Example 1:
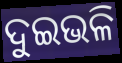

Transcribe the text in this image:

ଦୁଇଭଳି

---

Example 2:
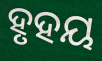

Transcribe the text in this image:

ହୃହୟ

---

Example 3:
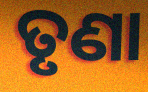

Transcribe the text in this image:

ତୃଣା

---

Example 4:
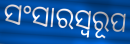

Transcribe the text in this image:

ସଂସାରସ୍ବରୂପ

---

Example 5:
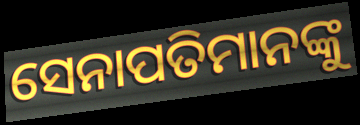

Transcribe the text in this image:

ସେନାପତିମାନଙ୍କୁ